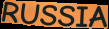
RUSSIA